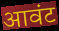
आवंट